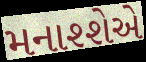
મનાશ્શેએ